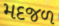
મદજળ